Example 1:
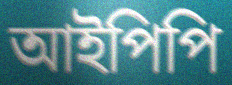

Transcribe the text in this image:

আইপিপি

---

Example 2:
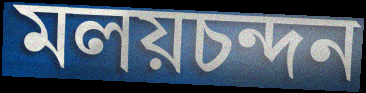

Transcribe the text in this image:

মলয়চন্দন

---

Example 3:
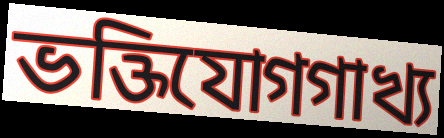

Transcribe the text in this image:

ভক্তিযোগগাখ্য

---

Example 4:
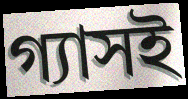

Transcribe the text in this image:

গ্যাসই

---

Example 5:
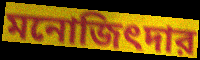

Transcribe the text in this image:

মনোজিৎদার